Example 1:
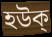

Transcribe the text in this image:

হউক্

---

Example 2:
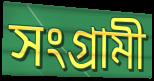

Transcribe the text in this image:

সংগ্রামী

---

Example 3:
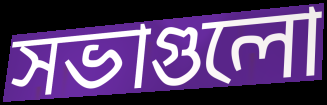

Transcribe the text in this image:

সভাগুলো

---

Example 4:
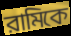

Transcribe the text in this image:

রামিকে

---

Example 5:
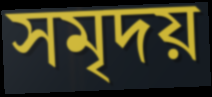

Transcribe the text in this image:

সমৃদয়